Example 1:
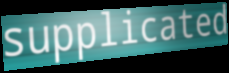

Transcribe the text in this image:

supplicated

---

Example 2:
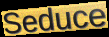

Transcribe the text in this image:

Seduce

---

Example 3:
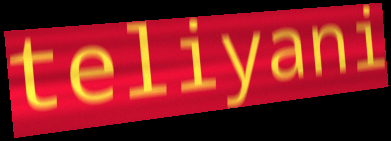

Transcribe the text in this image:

teliyani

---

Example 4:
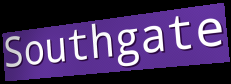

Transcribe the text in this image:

Southgate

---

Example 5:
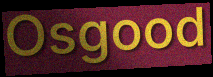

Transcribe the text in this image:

Osgood